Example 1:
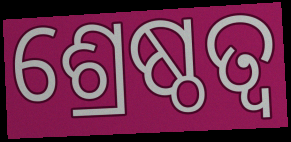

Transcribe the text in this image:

ଶ୍ରେଷ୍ଠତ୍ବ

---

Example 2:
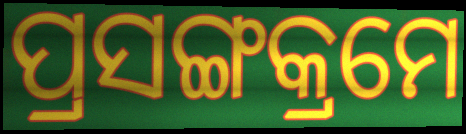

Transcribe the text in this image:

ପ୍ରସଙ୍ଗକ୍ରମେ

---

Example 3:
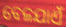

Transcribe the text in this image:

ବେଳଯାଏଁ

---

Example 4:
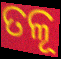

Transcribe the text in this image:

ତଳୂ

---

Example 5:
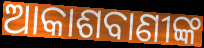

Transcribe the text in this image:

ଆକାଶବାଣୀଙ୍କ